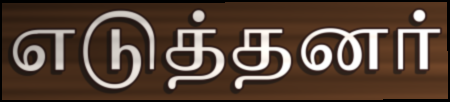
எடுத்தனர்